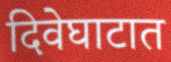
दिवेघाटात